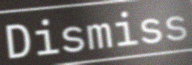
Dismiss